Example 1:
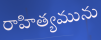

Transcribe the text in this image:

రాహిత్యమును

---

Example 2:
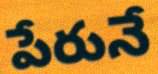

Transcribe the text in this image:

పేరునే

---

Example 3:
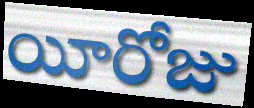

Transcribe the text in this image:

యీరోజు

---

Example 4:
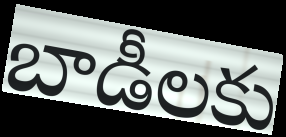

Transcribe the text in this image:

బాడీలకు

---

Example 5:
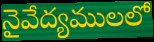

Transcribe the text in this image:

నైవేద్యములలో